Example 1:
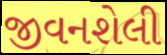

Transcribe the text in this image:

જીવનશેલી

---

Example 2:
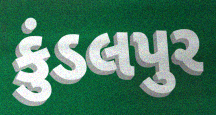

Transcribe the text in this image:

કુંડલપુર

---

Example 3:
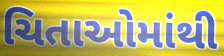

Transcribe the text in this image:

ચિતાઓમાંથી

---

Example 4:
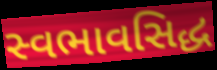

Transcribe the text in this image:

સ્વભાવસિદ્ધ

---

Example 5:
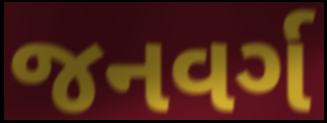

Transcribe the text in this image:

જનવર્ગ